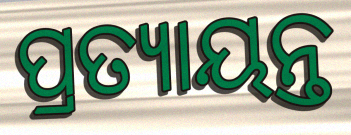
ପ୍ରତ୍ୟାୟନ୍ତ